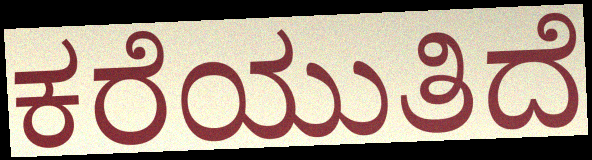
ಕರೆಯುತಿದೆ